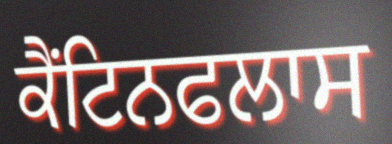
ਕੈਂਟਿਨਫਲਾਸ